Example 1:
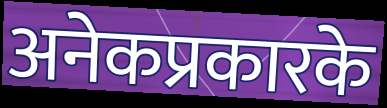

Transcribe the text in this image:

अनेकप्रकारके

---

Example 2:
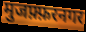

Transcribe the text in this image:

मुजफ़्फ़रनगर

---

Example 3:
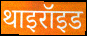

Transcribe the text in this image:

थाइरॉइड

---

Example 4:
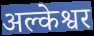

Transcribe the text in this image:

अल्केश्वर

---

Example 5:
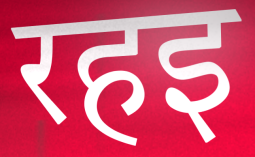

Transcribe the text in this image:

रहइ